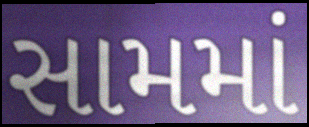
સામમાં